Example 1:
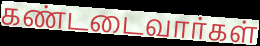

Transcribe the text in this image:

கண்டடைவார்கள்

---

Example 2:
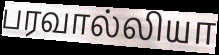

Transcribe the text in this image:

பரவால்லியா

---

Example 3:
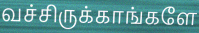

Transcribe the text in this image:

வச்சிருக்காங்களே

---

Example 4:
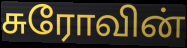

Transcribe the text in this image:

சுரோவின்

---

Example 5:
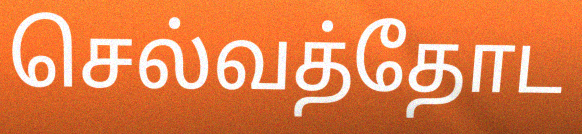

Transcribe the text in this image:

செல்வத்தோட